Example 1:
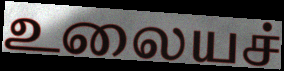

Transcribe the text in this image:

உலையச்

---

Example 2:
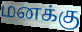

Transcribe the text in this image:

மனக்கு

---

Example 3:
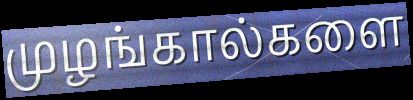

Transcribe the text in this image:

முழங்கால்களை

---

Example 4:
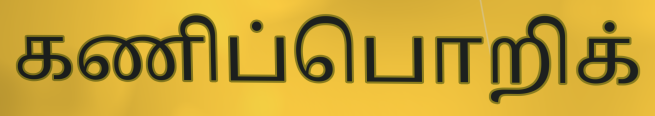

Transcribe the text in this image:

கணிப்பொறிக்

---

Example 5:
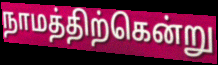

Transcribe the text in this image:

நாமத்திற்கென்று